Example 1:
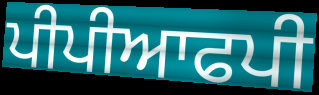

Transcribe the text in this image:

ਪੀਪੀਆਫਪੀ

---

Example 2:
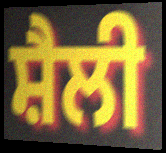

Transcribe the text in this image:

ਸ਼ੈਲੀ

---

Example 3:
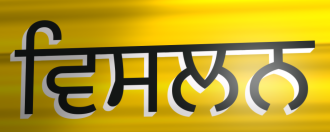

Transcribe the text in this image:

ਵਿਸਲਨ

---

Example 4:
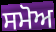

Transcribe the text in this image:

ਸਮੋਅ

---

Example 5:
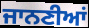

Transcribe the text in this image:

ਜਾਨਣੀਆਂ